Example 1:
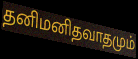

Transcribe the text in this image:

தனிமனிதவாதமும்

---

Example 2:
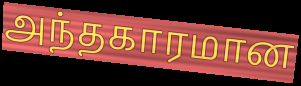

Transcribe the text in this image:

அந்தகாரமான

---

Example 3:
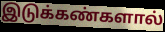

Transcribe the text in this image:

இடுக்கண்களால்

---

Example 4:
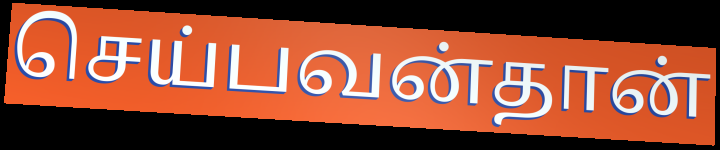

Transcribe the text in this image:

செய்பவன்தான்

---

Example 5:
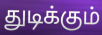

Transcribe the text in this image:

துடிக்கும்